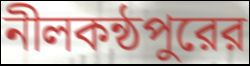
নীলকন্ঠপুরের